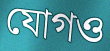
যোগও